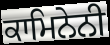
ਕਾਮਿਨੇਨੀ